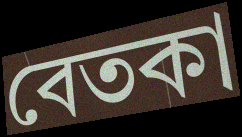
বেতকা